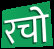
रचो